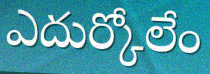
ఎదుర్కోలేం